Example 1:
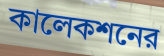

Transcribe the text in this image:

কালেকশনের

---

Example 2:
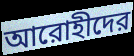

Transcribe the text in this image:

আরোহীদের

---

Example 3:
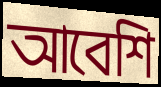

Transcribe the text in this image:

আবেশি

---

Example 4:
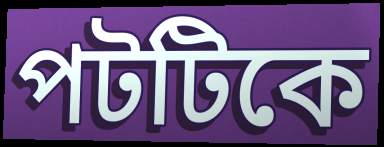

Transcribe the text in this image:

পটটিকে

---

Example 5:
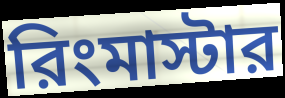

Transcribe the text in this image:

রিংমাস্টার